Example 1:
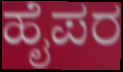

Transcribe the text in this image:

ಹೈಪರ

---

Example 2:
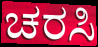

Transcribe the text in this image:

ಚರಸಿ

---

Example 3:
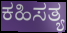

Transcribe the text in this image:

ಕಹಿಸತ್ಯ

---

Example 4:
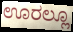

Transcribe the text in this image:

ಊರಲ್ಲೂ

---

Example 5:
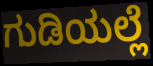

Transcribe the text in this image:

ಗುಡಿಯಲ್ಲೆ